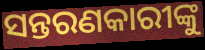
ସନ୍ତରଣକାରୀଙ୍କୁ